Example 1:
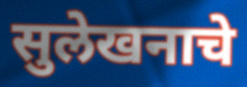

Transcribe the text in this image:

सुलेखनाचे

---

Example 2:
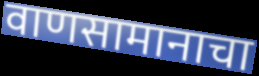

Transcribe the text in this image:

वाणसामानाचा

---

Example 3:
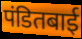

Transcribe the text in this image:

पंडितबाई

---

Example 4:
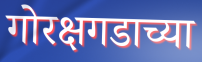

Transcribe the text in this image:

गोरक्षगडाच्या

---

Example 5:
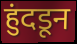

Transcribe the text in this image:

हुंदडून